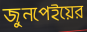
জুনপেইয়ের